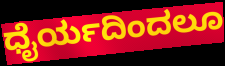
ಧೈರ್ಯದಿಂದಲೂ